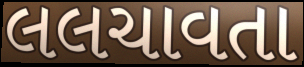
લલચાવતા